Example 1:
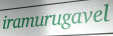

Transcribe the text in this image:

iramurugavel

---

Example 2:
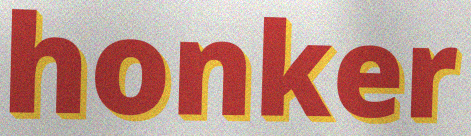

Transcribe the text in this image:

honker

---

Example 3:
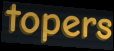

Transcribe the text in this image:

topers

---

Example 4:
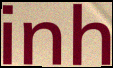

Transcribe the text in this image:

inh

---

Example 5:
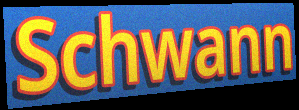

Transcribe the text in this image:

Schwann